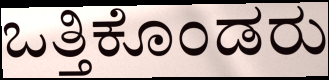
ಒತ್ತಿಕೊಂಡರು